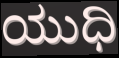
ಯುಧಿ